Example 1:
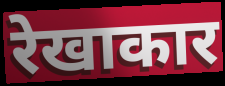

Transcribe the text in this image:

रेखाकार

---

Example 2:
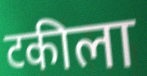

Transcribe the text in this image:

टकीला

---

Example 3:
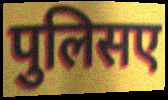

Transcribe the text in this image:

पुलिसए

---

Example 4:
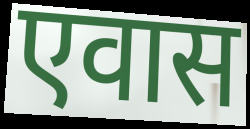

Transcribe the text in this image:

एवास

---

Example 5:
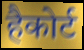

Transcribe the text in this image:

हैकोर्ट